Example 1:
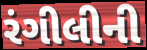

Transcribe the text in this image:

રંગીલીની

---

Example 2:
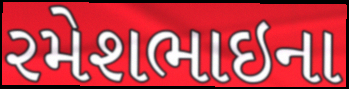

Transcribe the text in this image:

રમેશભાઇના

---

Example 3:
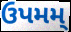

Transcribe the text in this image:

ઉપમમ્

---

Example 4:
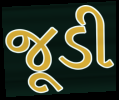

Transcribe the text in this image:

જૂડી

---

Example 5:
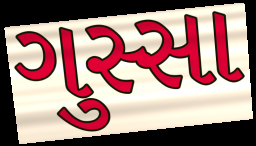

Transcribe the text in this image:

ગુસ્સા